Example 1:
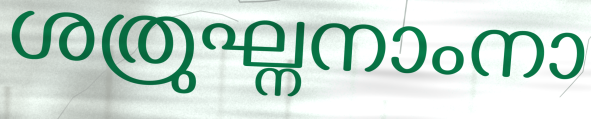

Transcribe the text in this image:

ശത്രുഘ്നനാംനാ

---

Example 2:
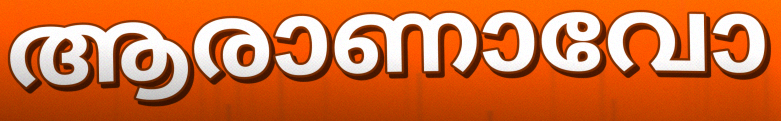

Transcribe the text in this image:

ആരാണാവോ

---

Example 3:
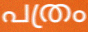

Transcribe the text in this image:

പത്രം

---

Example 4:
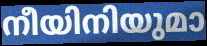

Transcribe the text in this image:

നീയിനിയുമാ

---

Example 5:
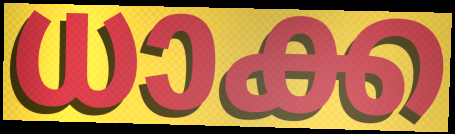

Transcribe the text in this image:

ധാക്ക